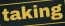
taking